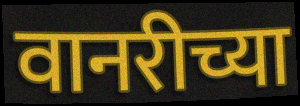
वानरीच्या